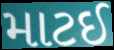
માટઈ